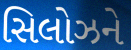
સિલોઝને